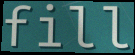
fill